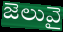
జెలువై